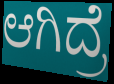
ಆಗಿದ್ರೆ